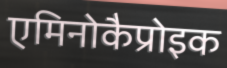
एमिनोकैप्रोइक